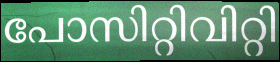
പോസിറ്റിവിറ്റി